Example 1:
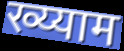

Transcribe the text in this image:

ख्य्याम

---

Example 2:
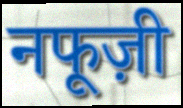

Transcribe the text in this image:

नफूज़ी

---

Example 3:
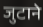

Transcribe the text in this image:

जुटाने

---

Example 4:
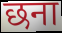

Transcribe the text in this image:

छना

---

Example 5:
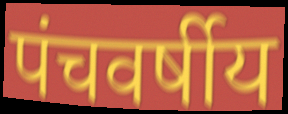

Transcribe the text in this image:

पंचवर्षीय